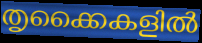
തൃക്കൈകളിൽ